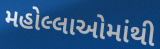
મહોલ્લાઓમાંથી